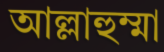
আল্লাহুম্মা